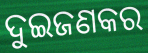
ଦୁଇଜଣକର